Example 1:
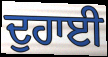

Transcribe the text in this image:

ਦੁਹਾਈ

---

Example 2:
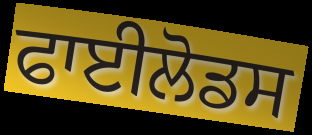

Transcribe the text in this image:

ਫਾਈਲੋਡਸ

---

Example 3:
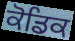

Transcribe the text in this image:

ਕੋਡਿਕ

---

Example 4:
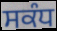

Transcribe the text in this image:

ਸਕੰਧ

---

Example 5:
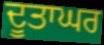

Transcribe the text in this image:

ਦੂਤਾਘਰ